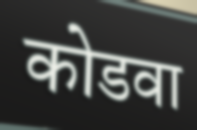
कोडवा